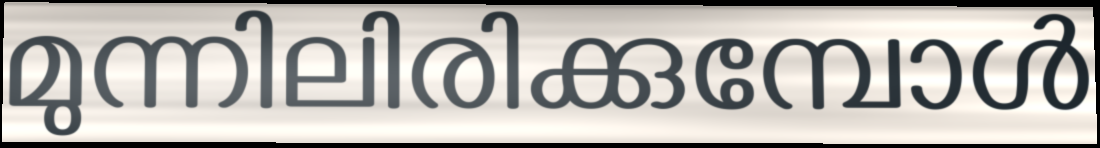
മുന്നിലിരിക്കുമ്പോൾ